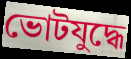
ভোটযুদ্ধে